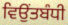
ਵਿਉਂਤਬੰਧੀ